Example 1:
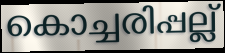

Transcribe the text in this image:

കൊച്ചരിപ്പല്ല്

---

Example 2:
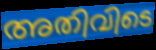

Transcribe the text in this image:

അതിവിടെ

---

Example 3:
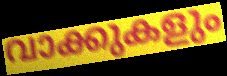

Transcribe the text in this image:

വാക്കുകളും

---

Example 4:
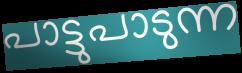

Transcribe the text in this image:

പാട്ടുപാടുന്ന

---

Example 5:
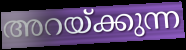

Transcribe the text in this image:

അറയ്ക്കുന്ന